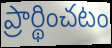
ప్రార్థించటం